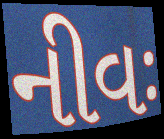
નીવઃ